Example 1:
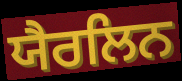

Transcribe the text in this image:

ਯੈਰਲਿਨ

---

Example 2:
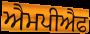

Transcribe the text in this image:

ਐਮਪੀਐਫ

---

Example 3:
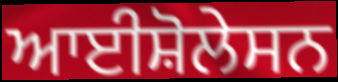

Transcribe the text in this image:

ਆਈਸ਼ੋਲੇਸਨ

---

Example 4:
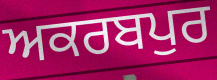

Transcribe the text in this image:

ਅਕਰਬਪੁਰ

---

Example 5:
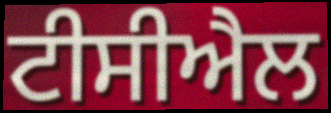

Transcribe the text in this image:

ਟੀਸੀਐਲ